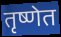
तृष्णेत